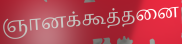
ஞானக்கூத்தனை